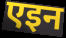
एइन